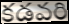
కడవరి